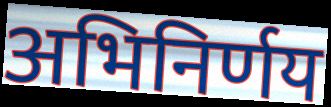
अभिनिर्णय